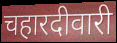
चहारदीवारी